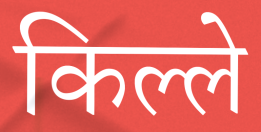
किल्ले